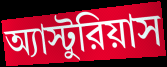
অ্যাস্টুরিয়াস